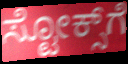
ಸ್ಟೋಕ್ಸ್‌ಗೆ